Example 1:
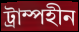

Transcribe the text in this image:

ট্রাম্পহীন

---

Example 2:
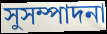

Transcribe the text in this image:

সুসম্পাদনা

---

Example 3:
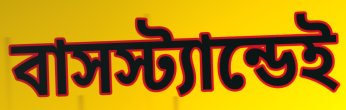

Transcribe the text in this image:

বাসস্ট্যান্ডেই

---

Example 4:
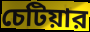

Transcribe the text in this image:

চেটিয়ার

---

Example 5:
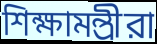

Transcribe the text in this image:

শিক্ষামন্ত্রীরা